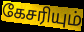
கேசரியும்